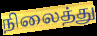
நிலைத்து